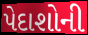
પેદાશોની